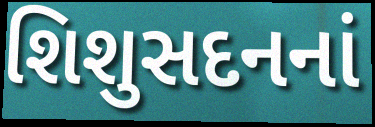
શિશુસદનનાં